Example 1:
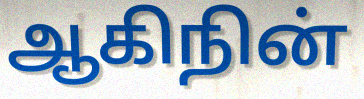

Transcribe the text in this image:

ஆகிநின்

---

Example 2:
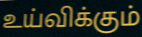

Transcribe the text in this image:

உய்விக்கும்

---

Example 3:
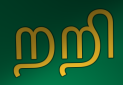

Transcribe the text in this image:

றறி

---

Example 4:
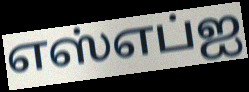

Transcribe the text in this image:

எஸ்எப்ஐ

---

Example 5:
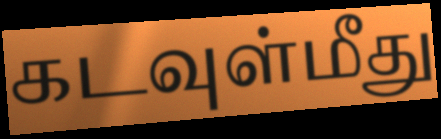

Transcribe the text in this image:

கடவுள்மீது